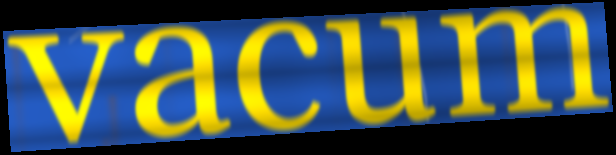
vacum